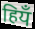
हियँ